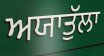
ਅਯਾਤੁੱਲਾ